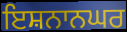
ਇਸ਼ਨਾਨਘਰ